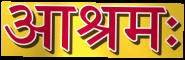
आश्रमः